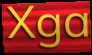
Xga